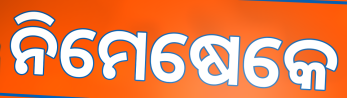
ନିମେଷେକେ